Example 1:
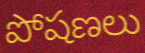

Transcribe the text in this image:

పోషణలు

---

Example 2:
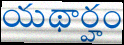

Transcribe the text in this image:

యథార్హం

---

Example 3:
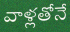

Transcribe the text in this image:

వాళ్లతోనే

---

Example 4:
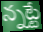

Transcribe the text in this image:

న్నట్టే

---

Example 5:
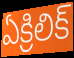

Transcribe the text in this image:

ఏక్రిలిక్